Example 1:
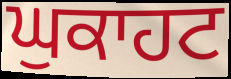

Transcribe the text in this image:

ਘੁਕਾਹਟ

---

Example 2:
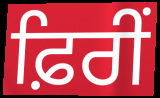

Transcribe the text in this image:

ਫ਼ਿਰੀਂ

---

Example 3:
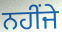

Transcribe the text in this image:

ਨਹੀਂਜੇ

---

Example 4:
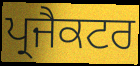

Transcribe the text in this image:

ਪ੍ਰਜੈਕਟਰ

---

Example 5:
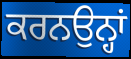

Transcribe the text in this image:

ਕਰਨਉਨ੍ਹਾਂ